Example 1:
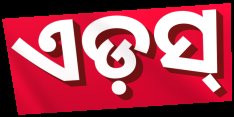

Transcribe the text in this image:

ଏଡ଼ସ୍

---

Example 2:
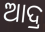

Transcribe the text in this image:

ଆଦ୍ର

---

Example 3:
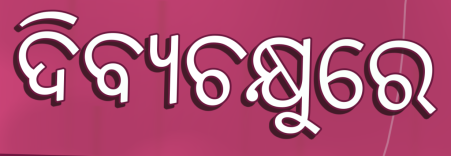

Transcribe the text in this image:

ଦିବ୍ୟଚକ୍ଷୁରେ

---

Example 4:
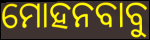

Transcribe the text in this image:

ମୋହନବାବୁ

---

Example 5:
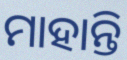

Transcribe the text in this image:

ମାହାନ୍ତି